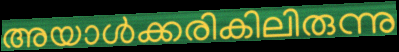
അയാൾക്കരികിലിരുന്നു